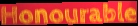
Honourable